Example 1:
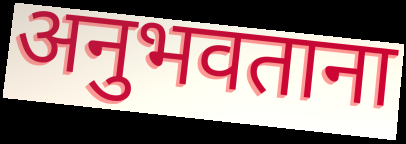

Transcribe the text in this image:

अनुभवताना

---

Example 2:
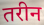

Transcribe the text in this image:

तरीन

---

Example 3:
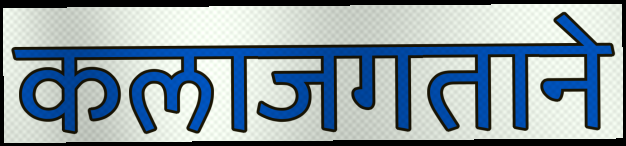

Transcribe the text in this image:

कलाजगताने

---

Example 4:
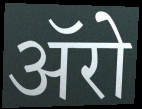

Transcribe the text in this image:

ॲरो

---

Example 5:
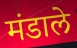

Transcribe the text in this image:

मंडाले